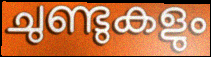
ചുണ്ടുകളും